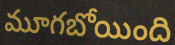
మూగబోయింది